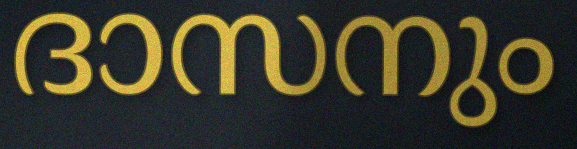
ദാസനും